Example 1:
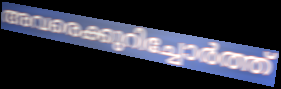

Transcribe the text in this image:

അവരെക്കുറിച്ചോർത്ത്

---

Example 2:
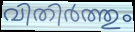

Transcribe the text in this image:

വിതിർത്തും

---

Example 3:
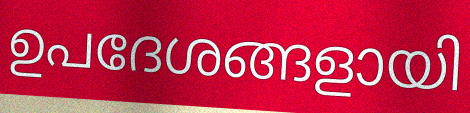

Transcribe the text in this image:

ഉപദേശങ്ങളായി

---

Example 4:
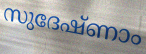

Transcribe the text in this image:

സുദേഷ്ണാം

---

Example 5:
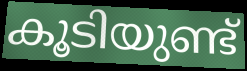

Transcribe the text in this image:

കൂടിയുണ്ട്